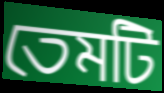
তেমটি